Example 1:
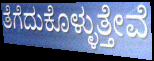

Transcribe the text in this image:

ತೆಗೆದುಕೊಳ್ಳುತ್ತೇವೆ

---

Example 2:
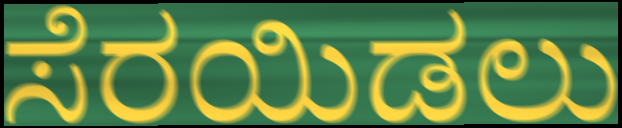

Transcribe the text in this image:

ಸೆರಯಿಡಲು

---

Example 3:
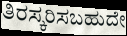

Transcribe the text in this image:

ತಿರಸ್ಕರಿಸಬಹುದೇ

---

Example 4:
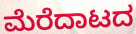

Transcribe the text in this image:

ಮೆರೆದಾಟದ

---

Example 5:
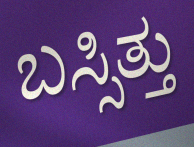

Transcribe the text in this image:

ಬಸ್ಸಿತ್ತು